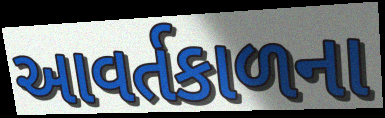
આવર્તકાળના